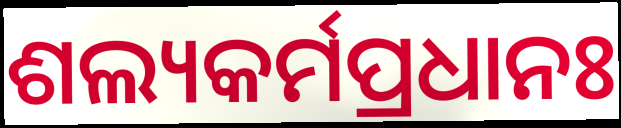
ଶଲ୍ୟକର୍ମପ୍ରଧାନଃ